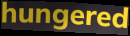
hungered